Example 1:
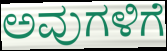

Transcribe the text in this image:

ಅವುಗಳಿಗೆ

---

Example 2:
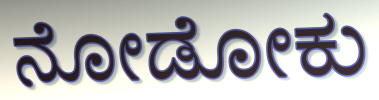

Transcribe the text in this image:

ನೋಡೋಕು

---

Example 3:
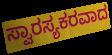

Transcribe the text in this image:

ಸ್ವಾರಸ್ಯಕರವಾದ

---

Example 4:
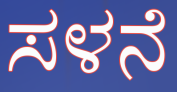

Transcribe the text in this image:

ಸಳನೆ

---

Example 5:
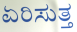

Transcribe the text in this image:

ಏರಿಸುತ್ತ